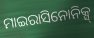
ମାଇରାସିନୋନିକ୍ସ୍